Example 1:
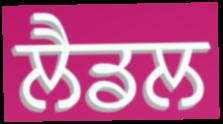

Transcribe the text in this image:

ਲੈਡਲ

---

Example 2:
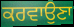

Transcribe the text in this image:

ਕਰਵਾਉਣਾ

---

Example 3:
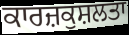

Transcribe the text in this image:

ਕਾਰਜ਼ਕੁਸ਼ਲਤਾ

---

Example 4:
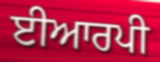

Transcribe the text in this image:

ਈਆਰਪੀ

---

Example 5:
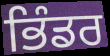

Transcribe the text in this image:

ਭਿੰਡਰ